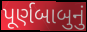
પૂર્ણબાબુનું